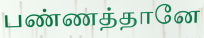
பண்ணத்தானே